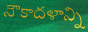
నౌకాదళాన్ని